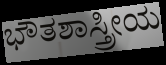
ಭೌತಶಾಸ್ತ್ರೀಯ